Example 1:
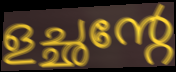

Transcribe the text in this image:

ളച്ഛന്റേ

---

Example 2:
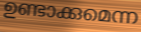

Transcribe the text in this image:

ഉണ്ടാക്കുമെന്ന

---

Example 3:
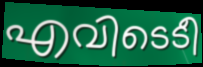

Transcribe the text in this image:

എവിടെടീ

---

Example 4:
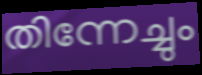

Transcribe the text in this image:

തിന്നേച്ചും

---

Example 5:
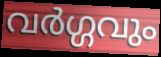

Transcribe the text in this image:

വർഗ്ഗവും